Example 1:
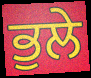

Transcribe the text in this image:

ਭੁਲੇ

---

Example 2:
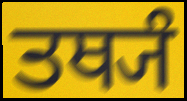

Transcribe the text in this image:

ਤਥ੍ਯੰ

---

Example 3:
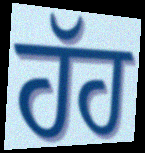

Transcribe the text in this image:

ਹੱਹ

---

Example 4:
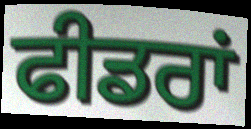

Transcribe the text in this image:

ਫੀਡਰਾਂ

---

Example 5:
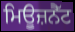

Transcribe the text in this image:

ਮਿਊਜ਼ਨੈੱਟ